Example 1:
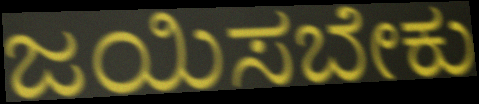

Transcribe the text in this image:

ಜಯಿಸಬೇಕು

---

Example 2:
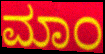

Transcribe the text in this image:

ಮಾಂ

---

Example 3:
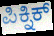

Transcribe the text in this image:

ಪಿಕ್ನಿಕ್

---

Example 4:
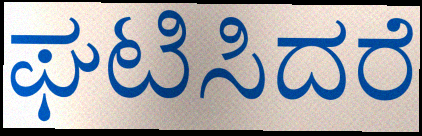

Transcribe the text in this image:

ಘಟಿಸಿದರೆ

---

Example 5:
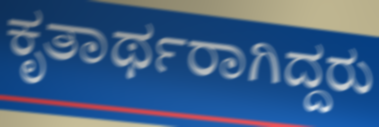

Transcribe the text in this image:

ಕೃತಾರ್ಥರಾಗಿದ್ದರು